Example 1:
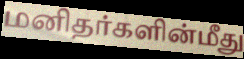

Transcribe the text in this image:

மனிதர்களின்மீது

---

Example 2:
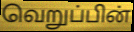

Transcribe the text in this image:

வெறுப்பின்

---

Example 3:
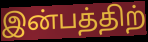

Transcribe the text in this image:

இன்பத்திற்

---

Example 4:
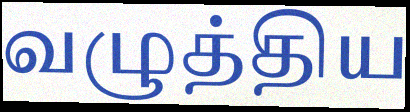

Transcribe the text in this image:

வழுத்திய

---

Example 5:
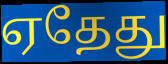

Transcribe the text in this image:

ஏதேது